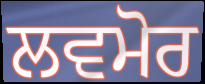
ਲਵਮੋਰ